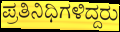
ಪ್ರತಿನಿಧಿಗಳಿದ್ದರು